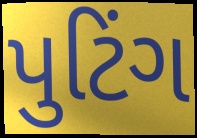
પુટિંગ